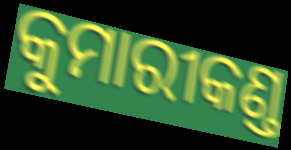
କୁମାରୀକଣ୍ଡ